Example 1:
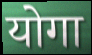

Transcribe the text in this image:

योगा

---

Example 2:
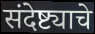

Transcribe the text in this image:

संदेष्ट्याचे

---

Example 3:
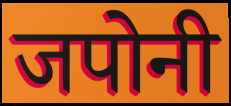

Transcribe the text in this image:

जपोनी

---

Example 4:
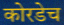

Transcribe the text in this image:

कोरडेच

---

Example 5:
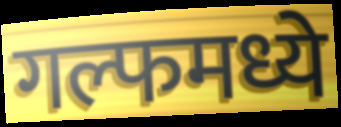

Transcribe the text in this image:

गल्फमध्ये